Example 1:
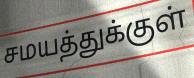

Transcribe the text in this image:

சமயத்துக்குள்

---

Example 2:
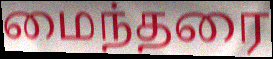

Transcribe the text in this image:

மைந்தரை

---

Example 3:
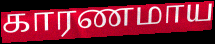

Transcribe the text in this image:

காரணமாய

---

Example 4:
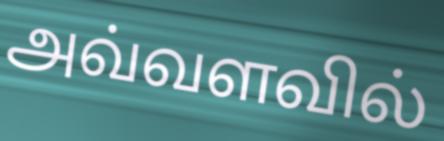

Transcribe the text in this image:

அவ்வளவில்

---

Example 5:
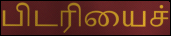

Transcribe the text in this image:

பிடரியைச்